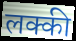
लक्की